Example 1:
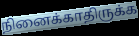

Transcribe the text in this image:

நினைக்காதிருக்க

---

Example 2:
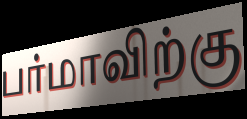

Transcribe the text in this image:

பர்மாவிற்கு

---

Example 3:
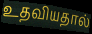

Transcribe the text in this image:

உதவியதால்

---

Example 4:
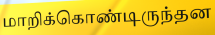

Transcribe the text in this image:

மாறிக்கொண்டிருந்தன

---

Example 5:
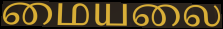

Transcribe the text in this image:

மையலை